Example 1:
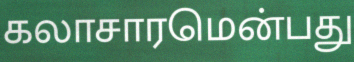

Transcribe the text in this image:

கலாசாரமென்பது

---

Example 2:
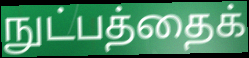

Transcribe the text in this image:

நுட்பத்தைக்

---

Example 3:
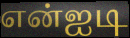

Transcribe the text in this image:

என்ஐடி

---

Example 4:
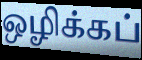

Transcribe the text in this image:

ஒழிக்கப்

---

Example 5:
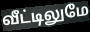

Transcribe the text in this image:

வீட்டிலுமே